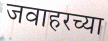
जवाहरच्या